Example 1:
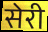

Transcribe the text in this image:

सेरी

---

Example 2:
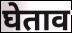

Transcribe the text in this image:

घेताव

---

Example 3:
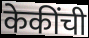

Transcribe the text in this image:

केकींची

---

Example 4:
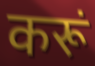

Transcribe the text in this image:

करूं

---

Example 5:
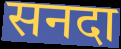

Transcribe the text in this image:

सनदा